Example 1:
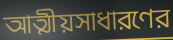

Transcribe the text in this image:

আত্মীয়সাধারণের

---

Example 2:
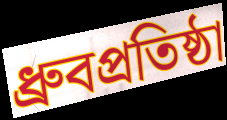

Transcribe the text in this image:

ধ্রুবপ্রতিষ্ঠা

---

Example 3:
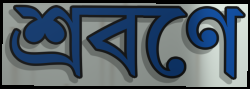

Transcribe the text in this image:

শ্রবণে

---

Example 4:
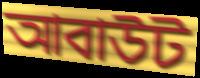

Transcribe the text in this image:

আবাউট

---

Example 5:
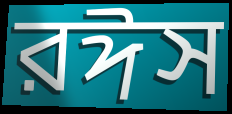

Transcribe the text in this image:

রঈস